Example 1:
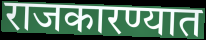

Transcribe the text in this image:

राजकारण्यात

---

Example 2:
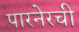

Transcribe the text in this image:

पारनेरची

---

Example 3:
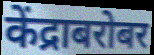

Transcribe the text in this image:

केंद्राबरोबर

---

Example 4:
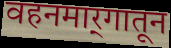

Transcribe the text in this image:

वहनमार्गातून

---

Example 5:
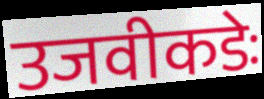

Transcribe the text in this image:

उजवीकडेः